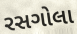
રસગોલા